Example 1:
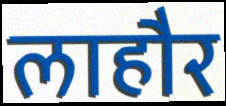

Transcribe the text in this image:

लाहौर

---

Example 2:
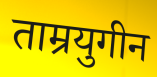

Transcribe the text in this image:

ताम्रयुगीन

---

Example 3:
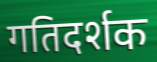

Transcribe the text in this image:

गतिदर्शक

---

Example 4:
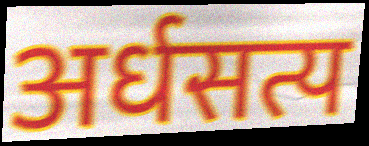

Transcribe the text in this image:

अर्धसत्य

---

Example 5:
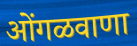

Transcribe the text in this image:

ओंगळवाणा